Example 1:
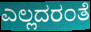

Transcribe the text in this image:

ಎಲ್ಲದರಂತೆ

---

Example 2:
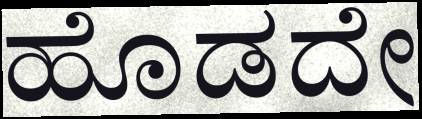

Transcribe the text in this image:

ಹೊಡದೇ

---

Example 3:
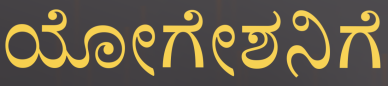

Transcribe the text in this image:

ಯೋಗೇಶನಿಗೆ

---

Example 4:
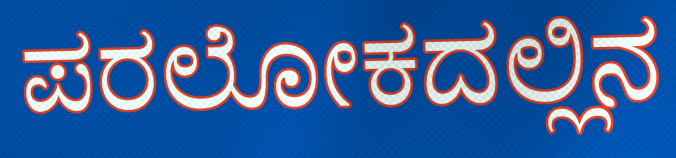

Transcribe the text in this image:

ಪರಲೋಕದಲ್ಲಿನ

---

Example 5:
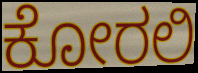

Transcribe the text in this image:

ಕೋರಲಿ